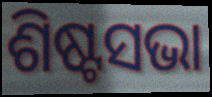
ଶିଷ୍ଟସଭା